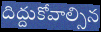
దిద్దుకోవాల్సిన